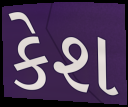
કેશ